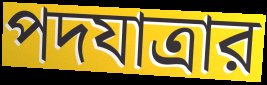
পদযাত্রার